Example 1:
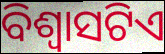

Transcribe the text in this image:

ବିଶ୍ଵାସଟିଏ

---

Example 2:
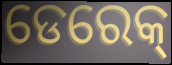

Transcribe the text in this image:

ଡେରେକ୍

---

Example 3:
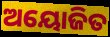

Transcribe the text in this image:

ଅୟୋଜିତ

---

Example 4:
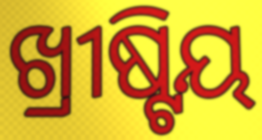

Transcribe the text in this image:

ଖ୍ରୀଷ୍ଟିୟ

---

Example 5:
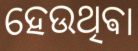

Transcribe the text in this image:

ହେଉଥିଵା